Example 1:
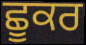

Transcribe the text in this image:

ਛੂਕਰ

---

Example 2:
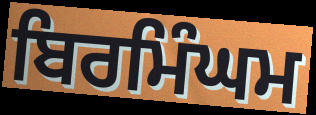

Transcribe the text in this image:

ਬਿਰਮਿੰਘਮ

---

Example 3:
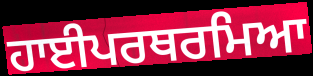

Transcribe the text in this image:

ਹਾਈਪਰਥਰਮਿਆ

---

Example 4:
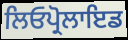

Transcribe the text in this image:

ਲਿਓਪ੍ਰੋਲਾਇਡ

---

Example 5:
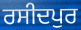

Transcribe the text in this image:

ਰਸੀਦਪੁਰ